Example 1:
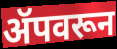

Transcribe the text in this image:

ॲपवरून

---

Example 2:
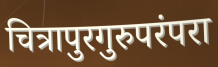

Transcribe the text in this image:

चित्रापुरगुरुपरंपरा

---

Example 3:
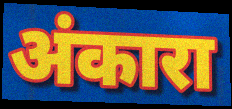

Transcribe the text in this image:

अंकारा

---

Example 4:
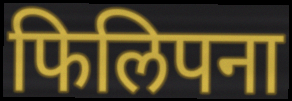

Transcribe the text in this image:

फिलिपना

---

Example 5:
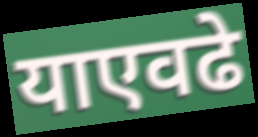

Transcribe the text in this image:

याएवढे